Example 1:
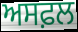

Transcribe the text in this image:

ਅਸਫ਼ਲ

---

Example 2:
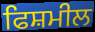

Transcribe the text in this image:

ਫਿਸ਼ਮੀਲ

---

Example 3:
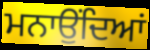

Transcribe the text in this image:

ਮਨਾਉਂਦਿਆਂ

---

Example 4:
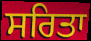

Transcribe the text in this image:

ਸਰਿਤਾ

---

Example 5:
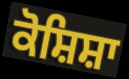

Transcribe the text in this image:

ਕੋਸ਼ਿਸ਼ਾ